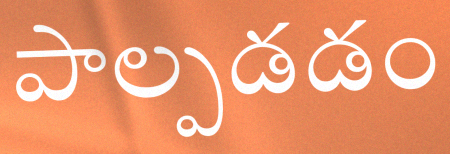
పాల్పడడం